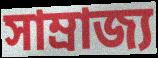
সাম্ৰাজ্য